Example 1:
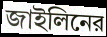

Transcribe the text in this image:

জাইলিনের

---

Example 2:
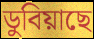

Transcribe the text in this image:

ডুবিয়াছে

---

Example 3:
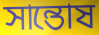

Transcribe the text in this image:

সান্তোষ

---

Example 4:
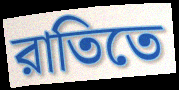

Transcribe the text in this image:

রাতিতে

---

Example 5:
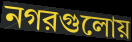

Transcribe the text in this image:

নগরগুলোয়